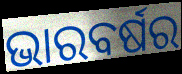
ଭାରବର୍ଷର